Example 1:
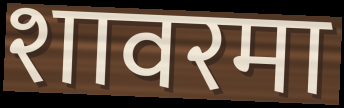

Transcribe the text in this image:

शावरमा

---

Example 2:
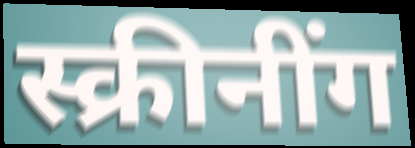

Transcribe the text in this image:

स्क्रीनींग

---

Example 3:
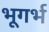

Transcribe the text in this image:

भूगर्भ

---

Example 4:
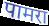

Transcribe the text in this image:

पामरा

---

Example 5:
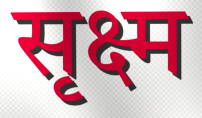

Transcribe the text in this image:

सृक्ष्म